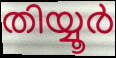
തിയ്യൂർ